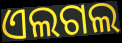
ଏଲଗଲ